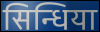
सिन्धिया